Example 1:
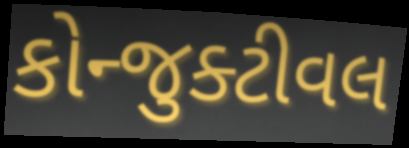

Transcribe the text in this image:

કોન્જુક્ટીવલ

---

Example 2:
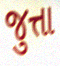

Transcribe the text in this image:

જુત્તા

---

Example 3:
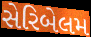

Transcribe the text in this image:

સેરિબેલમ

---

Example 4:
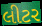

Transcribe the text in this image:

લીટર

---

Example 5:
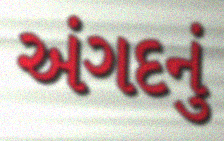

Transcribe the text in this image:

અંગદનું